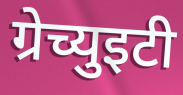
ग्रेच्युइटी